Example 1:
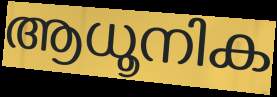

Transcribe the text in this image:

ആധൂനിക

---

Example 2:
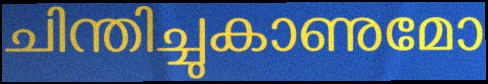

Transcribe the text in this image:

ചിന്തിച്ചുകാണുമോ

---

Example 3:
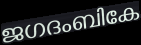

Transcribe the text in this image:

ജഗദംബികേ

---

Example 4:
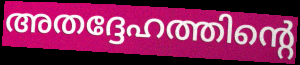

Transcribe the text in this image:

അതദ്ദേഹത്തിന്റെ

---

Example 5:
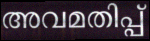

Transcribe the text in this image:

അവമതിപ്പ്